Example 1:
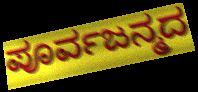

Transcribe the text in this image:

ಪೂರ್ವಜನ್ಮದ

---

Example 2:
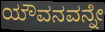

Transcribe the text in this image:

ಯೌವನವನ್ನೇ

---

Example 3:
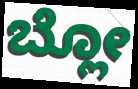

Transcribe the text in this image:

ಬ್ಲೋ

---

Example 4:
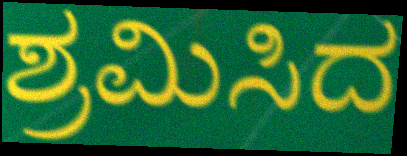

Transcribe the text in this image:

ಶ್ರಮಿಸಿದ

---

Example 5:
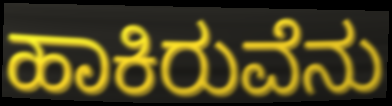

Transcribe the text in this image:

ಹಾಕಿರುವೆನು